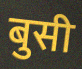
बुसी